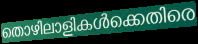
തൊഴിലാളികൾക്കെതിരെ